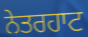
ਨੇਤਰਹਾਟ